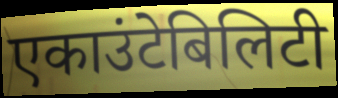
एकाउंटेबिलिटी